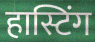
हास्टिंग